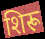
शिरू